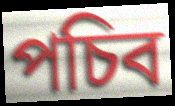
পচিব